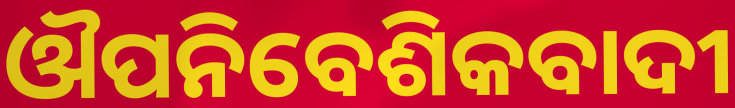
ଔପନିବେଶିକବାଦୀ